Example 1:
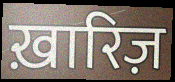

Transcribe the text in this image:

ख़ारिज़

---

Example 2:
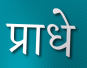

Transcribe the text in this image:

प्राधे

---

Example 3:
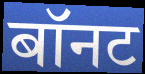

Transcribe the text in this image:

बॉनट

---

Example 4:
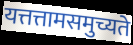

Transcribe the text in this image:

यत्तत्तामसमुच्यते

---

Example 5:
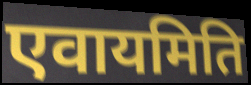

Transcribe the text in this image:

एवायमिति